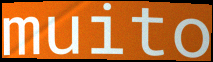
muito